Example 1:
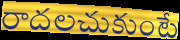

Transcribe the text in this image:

రాదలచుకుంటే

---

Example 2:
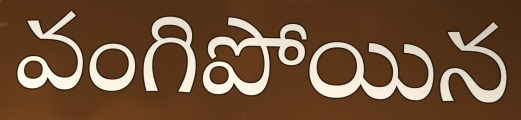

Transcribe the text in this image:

వంగిపోయిన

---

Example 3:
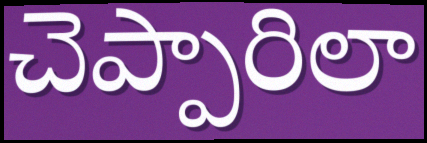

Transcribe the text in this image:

చెప్పారిలా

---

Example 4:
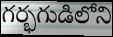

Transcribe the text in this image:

గర్భగుడిలోని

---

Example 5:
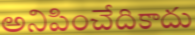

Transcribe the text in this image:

అనిపించేదికాదు